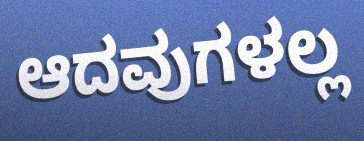
ಆದವುಗಳಲ್ಲ